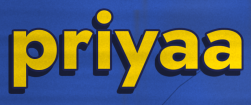
priyaa